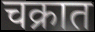
चक्रात